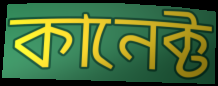
কানেক্ট